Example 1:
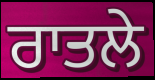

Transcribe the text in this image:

ਰਾਤਲੇ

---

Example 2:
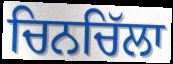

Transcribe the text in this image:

ਚਿਨਚਿੱਲਾ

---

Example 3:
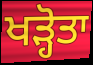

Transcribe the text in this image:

ਖੜ੍ਹੋਤਾ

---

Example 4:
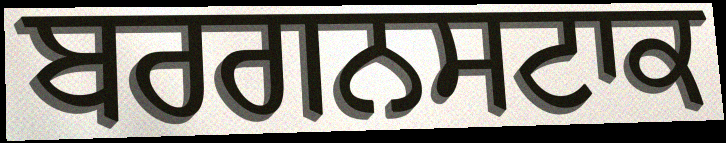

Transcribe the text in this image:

ਬਰਗਨਸਟਾਕ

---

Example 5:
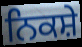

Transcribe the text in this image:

ਨਿਕਸ਼ੇ